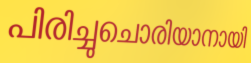
പിരിച്ചുചൊരിയാനായി